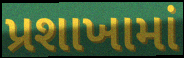
પ્રશાખામાં